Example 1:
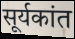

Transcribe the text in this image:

सूर्यकांत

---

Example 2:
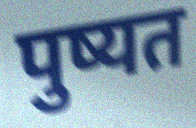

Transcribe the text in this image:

पुष्यत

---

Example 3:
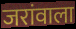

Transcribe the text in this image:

जरांवाला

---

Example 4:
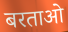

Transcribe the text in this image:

बरताओ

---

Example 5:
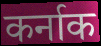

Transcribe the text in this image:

कर्नाक